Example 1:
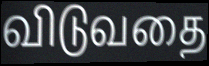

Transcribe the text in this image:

விடுவதை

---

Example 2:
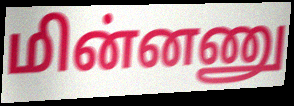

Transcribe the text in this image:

மின்னணு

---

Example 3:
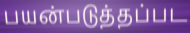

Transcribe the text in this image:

பயன்படுத்தப்பட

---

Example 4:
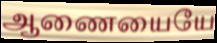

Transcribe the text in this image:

ஆணையையே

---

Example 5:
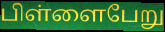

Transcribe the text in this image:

பிள்ளைபேறு